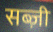
सब्ज़ी